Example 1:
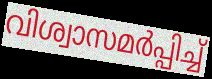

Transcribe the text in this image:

വിശ്വാസമർപ്പിച്ച്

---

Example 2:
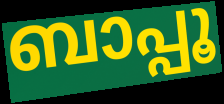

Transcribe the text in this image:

ബാപ്പൂ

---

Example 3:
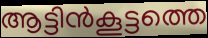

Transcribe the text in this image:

ആട്ടിൻകൂട്ടത്തെ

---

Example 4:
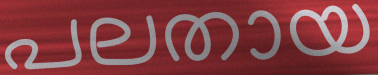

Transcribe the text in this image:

പലതായ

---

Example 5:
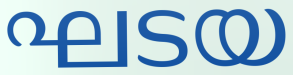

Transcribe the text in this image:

ഘടയ